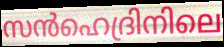
സൻഹെദ്രിനിലെ